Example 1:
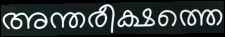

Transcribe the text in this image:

അന്തരീക്ഷത്തെ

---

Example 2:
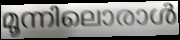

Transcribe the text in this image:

മൂന്നിലൊരാൾ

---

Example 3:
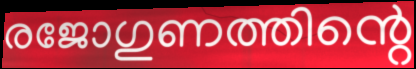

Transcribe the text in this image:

രജോഗുണത്തിന്റെ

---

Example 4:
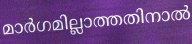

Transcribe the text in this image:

മാർഗമില്ലാത്തതിനാൽ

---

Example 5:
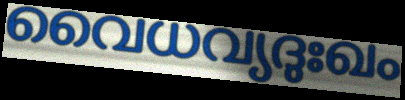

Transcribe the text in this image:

വൈധവ്യദുഃഖം